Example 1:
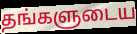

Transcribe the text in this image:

தங்களுடைய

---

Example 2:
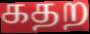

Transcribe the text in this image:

கதற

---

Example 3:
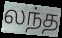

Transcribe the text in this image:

லந்த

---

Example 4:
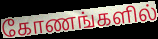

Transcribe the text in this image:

கோணங்களில்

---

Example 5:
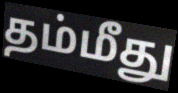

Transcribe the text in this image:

தம்மீது